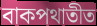
বাকপথাতীত